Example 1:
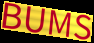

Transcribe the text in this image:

BUMS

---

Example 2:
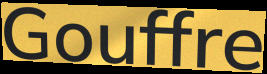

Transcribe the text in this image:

Gouffre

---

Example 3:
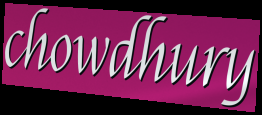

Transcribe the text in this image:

chowdhury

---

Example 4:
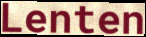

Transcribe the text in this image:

Lenten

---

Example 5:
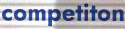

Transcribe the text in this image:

competiton